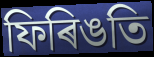
ফিৰিঙতি